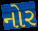
નોર